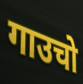
गाउचो